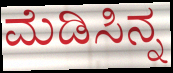
ಮೆಡಿಸಿನ್ನ